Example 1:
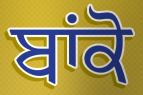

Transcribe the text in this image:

ਬਾਂਕੋ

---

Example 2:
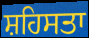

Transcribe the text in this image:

ਸ਼ਹਿਸਤਾ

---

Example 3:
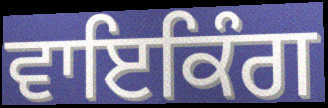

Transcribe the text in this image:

ਵਾਇਕਿੰਗ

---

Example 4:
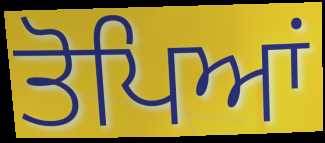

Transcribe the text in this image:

ਤੋਪਿਆਂ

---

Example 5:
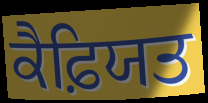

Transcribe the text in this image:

ਕੈਫ਼ਿਯਤ